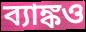
ব্যাঙ্কও